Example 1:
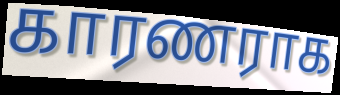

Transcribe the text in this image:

காரணராக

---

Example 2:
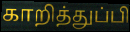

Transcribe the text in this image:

காறித்துப்பி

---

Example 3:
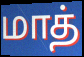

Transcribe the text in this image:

மாத்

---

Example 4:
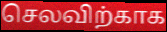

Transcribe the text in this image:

செலவிற்காக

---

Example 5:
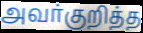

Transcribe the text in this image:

அவர்குறித்த